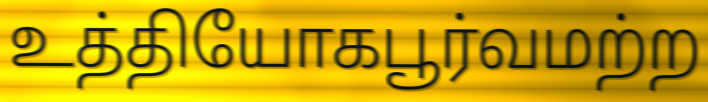
உத்தியோகபூர்வமற்ற